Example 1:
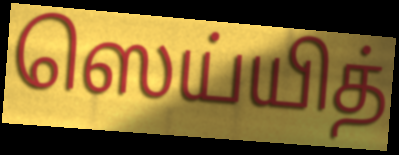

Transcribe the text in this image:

ஸெய்யித்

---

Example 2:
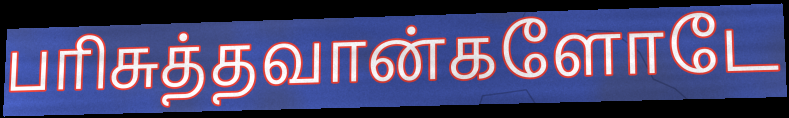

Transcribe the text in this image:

பரிசுத்தவான்களோடே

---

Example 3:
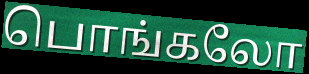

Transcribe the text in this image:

பொங்கலோ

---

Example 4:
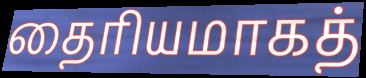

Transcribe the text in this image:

தைரியமாகத்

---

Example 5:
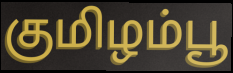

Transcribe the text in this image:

குமிழம்பூ